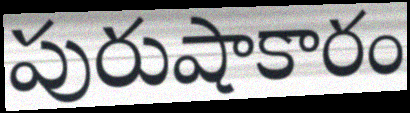
పురుషాకారం